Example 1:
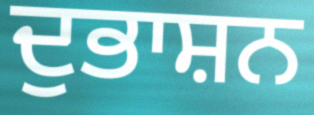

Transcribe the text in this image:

ਦੁਭਾਸ਼ਨ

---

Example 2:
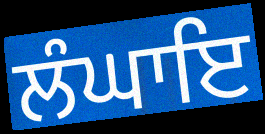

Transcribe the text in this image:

ਲੰਘਾਇ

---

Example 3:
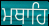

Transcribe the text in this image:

ਮਥਾਹਿ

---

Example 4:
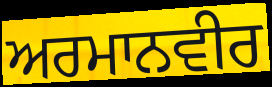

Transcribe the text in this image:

ਅਰਮਾਨਵੀਰ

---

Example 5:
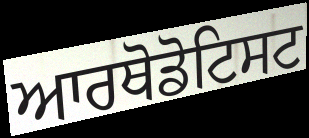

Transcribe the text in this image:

ਆਰਥੋਡੋਟਿਸਟ